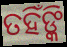
ତହିଁଙ୍କି